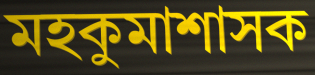
মহকুমাশাসক